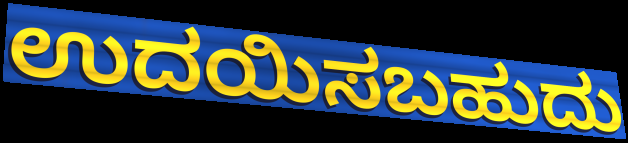
ಉದಯಿಸಬಹುದು